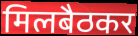
मिलबैठकर